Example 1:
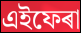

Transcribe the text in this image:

এইফেৰা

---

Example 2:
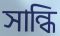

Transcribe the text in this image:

সান্ধি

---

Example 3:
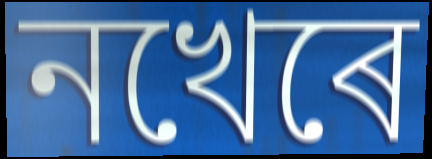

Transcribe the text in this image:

নখেৰে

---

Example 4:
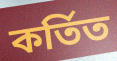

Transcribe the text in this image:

কৰ্তিত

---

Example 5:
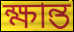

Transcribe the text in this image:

ক্ষান্ত